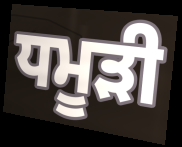
ਧਮੂੜੀ